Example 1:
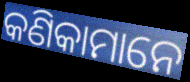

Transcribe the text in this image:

କଣିକାମାନେ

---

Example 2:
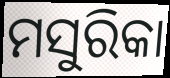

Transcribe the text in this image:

ମସୁରିକା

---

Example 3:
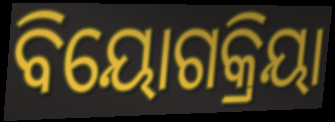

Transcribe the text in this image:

ବିୟୋଗକ୍ରିୟା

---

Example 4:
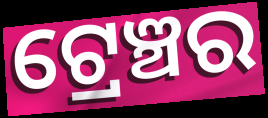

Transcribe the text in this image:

ଟ୍ରେଞ୍ଚର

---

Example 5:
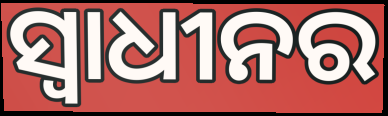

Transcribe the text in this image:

ସ୍ୱାଧୀନର